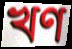
খণ